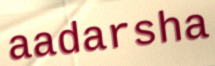
aadarsha